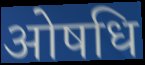
ओषधि